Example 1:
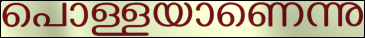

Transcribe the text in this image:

പൊള്ളയാണെന്നു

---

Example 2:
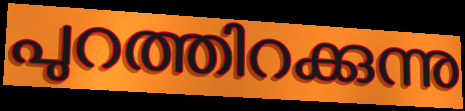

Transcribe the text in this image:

പുറത്തിറക്കുന്നു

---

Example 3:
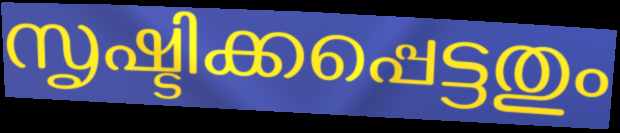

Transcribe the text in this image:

സൃഷ്ടിക്കപ്പെട്ടതും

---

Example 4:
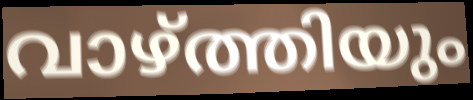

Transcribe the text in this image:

വാഴ്ത്തിയും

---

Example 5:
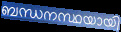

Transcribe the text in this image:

ബന്ധനസ്ഥയായി